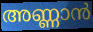
അണ്ണാൻ